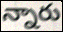
న్నారు